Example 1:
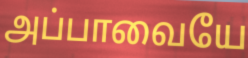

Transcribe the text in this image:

அப்பாவையே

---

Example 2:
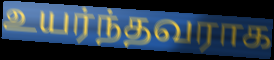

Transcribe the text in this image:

உயர்ந்தவராக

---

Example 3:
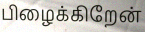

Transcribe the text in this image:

பிழைக்கிறேன்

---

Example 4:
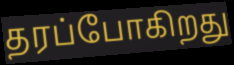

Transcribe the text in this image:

தரப்போகிறது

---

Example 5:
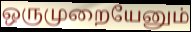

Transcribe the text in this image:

ஒருமுறையேனும்